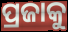
ପ୍ରଜାକୁ